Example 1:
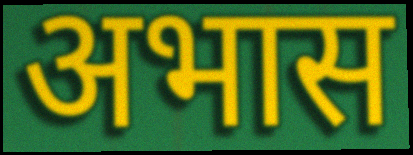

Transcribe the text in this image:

अभास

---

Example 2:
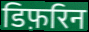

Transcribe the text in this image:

डिफ़रिन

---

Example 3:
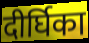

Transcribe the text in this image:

दीर्घिका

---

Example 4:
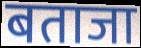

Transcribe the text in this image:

बताजा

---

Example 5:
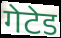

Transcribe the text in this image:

गेटेड